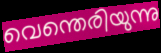
വെന്തെരിയുന്നു